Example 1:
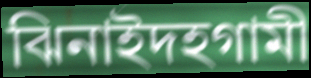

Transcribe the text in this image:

ঝিনাইদহগামী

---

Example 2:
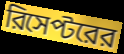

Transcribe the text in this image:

রিসেপ্টরের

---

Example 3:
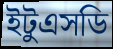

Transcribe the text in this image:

ইটুএসডি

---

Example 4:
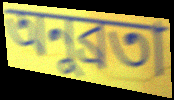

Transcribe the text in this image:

অনুব্রতা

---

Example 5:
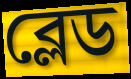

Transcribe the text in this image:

ব্লেড